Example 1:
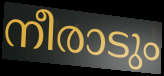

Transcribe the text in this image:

നീരാടും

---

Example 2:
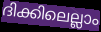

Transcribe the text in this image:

ദിക്കിലെല്ലാം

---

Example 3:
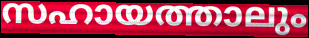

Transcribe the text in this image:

സഹായത്താലും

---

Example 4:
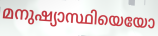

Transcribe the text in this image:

മനുഷ്യാസ്ഥിയെയോ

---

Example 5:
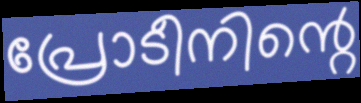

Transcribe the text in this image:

പ്രോടീനിന്റെ